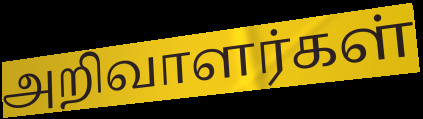
அறிவாளர்கள்